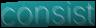
consist